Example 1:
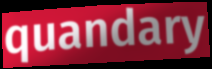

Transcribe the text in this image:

quandary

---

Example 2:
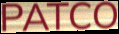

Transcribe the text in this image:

PATCO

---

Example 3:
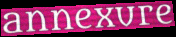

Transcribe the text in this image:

annexure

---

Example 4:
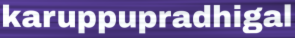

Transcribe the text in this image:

karuppupradhigal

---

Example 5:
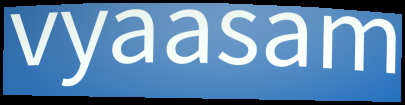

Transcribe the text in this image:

vyaasam